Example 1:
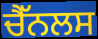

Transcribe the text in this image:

ਚੈੱਨਲਸ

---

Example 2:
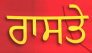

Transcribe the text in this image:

ਰਾਸਤੇ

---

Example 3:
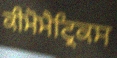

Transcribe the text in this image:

ਕੀਮੋਮੈਟ੍ਰਿਕਸ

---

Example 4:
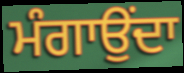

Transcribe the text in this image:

ਮੰਗਾਉਂਦਾ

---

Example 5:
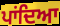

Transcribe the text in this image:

ਪਾਂਦਿਆ